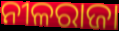
ନୀଳରାଜା